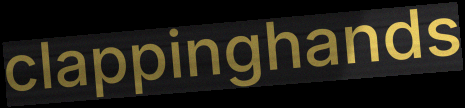
clappinghands